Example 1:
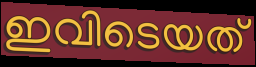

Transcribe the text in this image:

ഇവിടെയത്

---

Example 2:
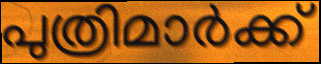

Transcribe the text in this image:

പുത്രിമാർക്ക്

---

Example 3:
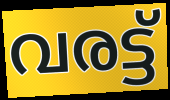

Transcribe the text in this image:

വരട്ട്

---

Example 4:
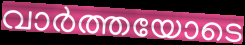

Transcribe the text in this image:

വാർത്തയോടെ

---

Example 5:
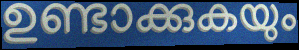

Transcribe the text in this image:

ഉണ്ടാക്കുകയും